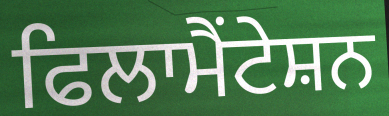
ਫਿਲਾਮੈਂਟੇਸ਼ਨ